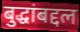
बुद्धांबद्दल